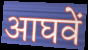
आघवें